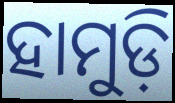
ହାମୁଡ଼ି